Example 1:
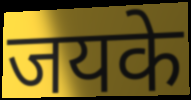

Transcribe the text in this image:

जयके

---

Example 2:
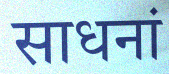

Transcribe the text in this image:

साधनां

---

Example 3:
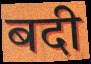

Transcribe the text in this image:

बदी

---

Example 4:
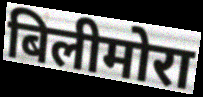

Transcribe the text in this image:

बिलीमोरा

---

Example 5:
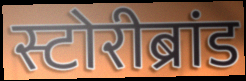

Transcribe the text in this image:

स्टोरीब्रांड